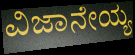
ವಿಜಾನೇಯ್ಯ